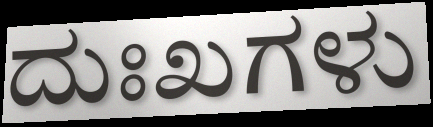
ದುಃಖಗಳು